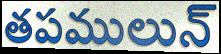
తపములున్